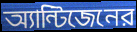
অ্যান্টিজেনের